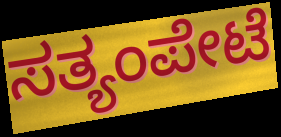
ಸತ್ಯಂಪೇಟೆ